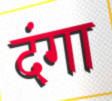
दंगा